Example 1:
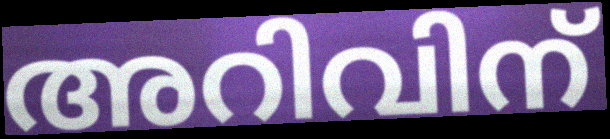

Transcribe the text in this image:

അറിവിന്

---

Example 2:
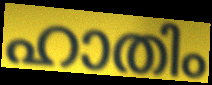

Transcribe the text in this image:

ഹാതിം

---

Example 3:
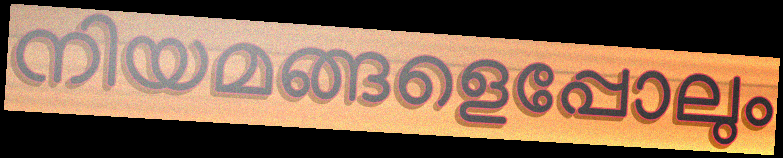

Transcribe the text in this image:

നിയമങ്ങളെപ്പോലും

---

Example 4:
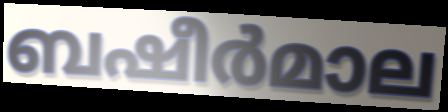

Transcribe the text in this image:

ബഷീർമാല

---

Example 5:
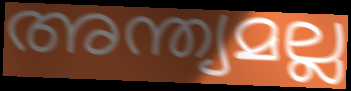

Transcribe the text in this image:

അന്ത്യമല്ല